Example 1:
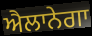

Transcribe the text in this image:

ਐਲਾਨੇਗਾ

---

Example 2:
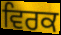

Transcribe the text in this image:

ਵਿਰਕ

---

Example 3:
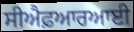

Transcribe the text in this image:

ਸੀਐਫ਼ਆਰਆਈ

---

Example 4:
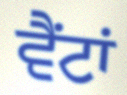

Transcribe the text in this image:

ਵੈਂਟਾਂ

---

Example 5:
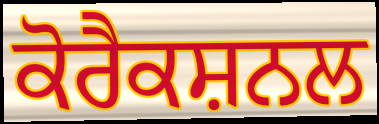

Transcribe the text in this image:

ਕੋਰੈਕਸ਼ਨਲ